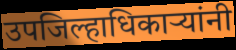
उपजिल्हाधिकाऱ्यांनी